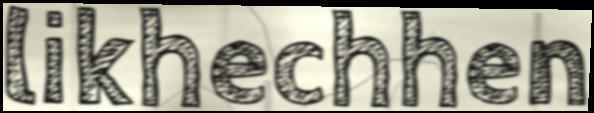
likhechhen